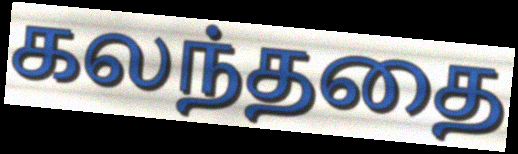
கலந்ததை